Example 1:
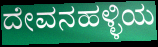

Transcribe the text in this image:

ದೇವನಹಳ್ಳಿಯ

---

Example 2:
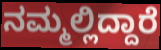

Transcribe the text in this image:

ನಮ್ಮಲ್ಲಿದ್ದಾರೆ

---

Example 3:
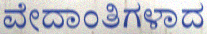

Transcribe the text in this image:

ವೇದಾಂತಿಗಳಾದ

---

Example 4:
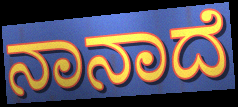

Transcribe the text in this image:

ನಾನಾದೆ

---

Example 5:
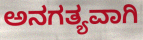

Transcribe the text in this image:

ಅನಗತ್ಯವಾಗಿ